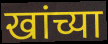
खांच्या